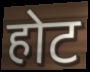
होट